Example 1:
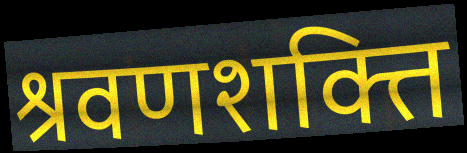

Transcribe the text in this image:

श्रवणशक्ति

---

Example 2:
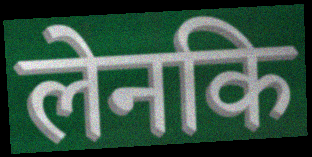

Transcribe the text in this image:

लेनकि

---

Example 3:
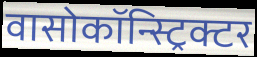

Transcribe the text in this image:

वासोकॉन्स्ट्रिक्टर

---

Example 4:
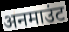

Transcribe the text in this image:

अनमाउंट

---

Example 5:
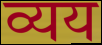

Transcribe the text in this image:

व्यय